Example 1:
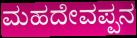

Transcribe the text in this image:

ಮಹದೇವಪ್ಪನ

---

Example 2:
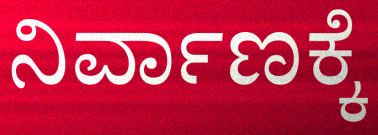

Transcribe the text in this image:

ನಿರ್ವಾಣಕ್ಕೆ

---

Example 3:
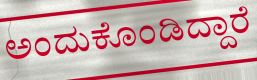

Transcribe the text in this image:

ಅಂದುಕೊಂಡಿದ್ದಾರೆ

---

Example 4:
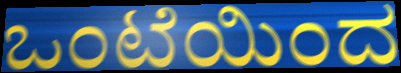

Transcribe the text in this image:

ಒಂಟೆಯಿಂದ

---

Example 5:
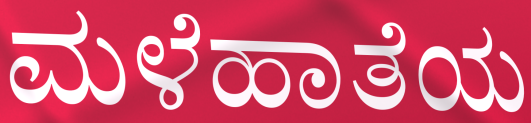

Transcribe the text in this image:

ಮಳೆಹಾತೆಯ